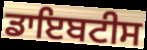
ਡਾਇਬਟੀਸ